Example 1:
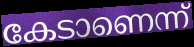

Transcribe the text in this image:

കേടാണെന്ന്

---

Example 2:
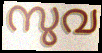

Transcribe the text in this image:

സുവ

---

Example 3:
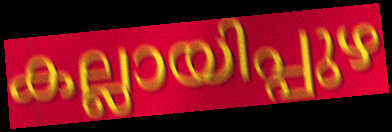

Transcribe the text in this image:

കല്ലായിപ്പുഴ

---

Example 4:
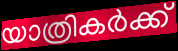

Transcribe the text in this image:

യാത്രികർക്ക്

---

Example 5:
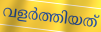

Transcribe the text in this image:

വളർത്തിയത്